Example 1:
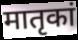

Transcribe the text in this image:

मातृकां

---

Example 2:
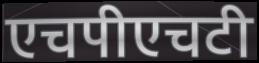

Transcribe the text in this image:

एचपीएचटी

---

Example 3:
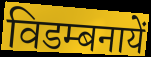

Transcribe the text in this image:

विडम्बनायें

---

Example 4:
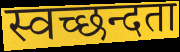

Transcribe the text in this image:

स्वच्छन्दता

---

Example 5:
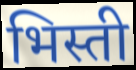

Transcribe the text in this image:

भिस्ती